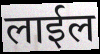
लाईल